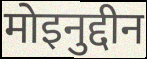
मोइनुद्दीन